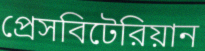
প্রেসবিটেরিয়ান